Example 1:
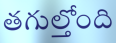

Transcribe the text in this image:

తగుల్తోంది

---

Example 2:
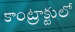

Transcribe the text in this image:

కాంట్రాక్టులో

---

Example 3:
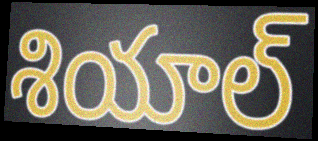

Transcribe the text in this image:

శియాల్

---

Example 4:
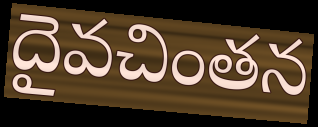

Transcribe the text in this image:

దైవచింతన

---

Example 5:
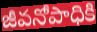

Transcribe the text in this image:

జీవనోపాధికి